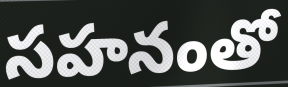
సహనంతో